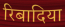
रिबादिया